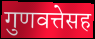
गुणवत्तेसह